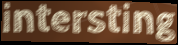
intersting